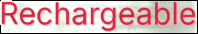
Rechargeable